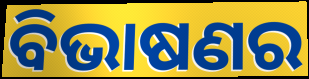
ବିଭାଷଣର